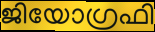
ജിയോഗ്രഫി